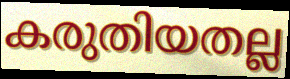
കരുതിയതല്ല